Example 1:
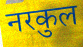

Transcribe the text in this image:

नरकुल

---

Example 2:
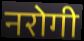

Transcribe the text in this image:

नरोगी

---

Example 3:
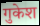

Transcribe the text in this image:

गुकेश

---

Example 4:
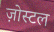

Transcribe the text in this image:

ज़ोस्टल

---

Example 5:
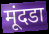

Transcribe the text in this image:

मूंदडा